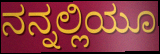
ನನ್ನಲ್ಲಿಯೂ